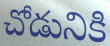
చోడునికి